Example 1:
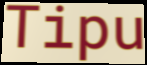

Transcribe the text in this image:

Tipu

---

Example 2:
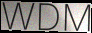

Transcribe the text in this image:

WDM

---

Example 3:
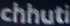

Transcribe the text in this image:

chhuti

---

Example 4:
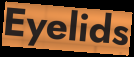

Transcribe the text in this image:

Eyelids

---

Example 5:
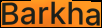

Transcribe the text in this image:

Barkha